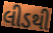
લીડથી